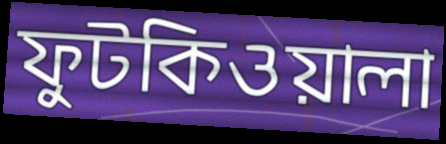
ফুটকিওয়ালা